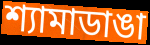
শ্যামাডাঙা